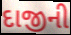
દાજીની